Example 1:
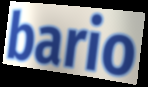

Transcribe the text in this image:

bario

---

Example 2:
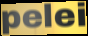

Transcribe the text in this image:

pelei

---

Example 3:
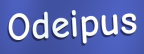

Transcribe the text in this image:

Odeipus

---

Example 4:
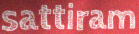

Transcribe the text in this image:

sattiram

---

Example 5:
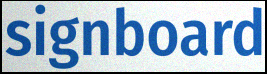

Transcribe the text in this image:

signboard